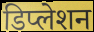
डिप्लेशन